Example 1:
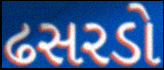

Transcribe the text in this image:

ઢસરડો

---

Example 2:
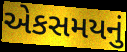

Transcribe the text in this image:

એકસમયનું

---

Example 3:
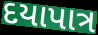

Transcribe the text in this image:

દયાપાત્ર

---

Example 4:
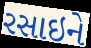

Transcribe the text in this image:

રસાઇને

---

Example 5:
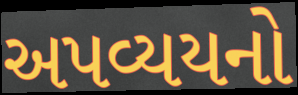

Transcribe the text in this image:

અપવ્યયનો